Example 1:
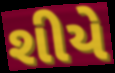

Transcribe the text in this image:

શીયે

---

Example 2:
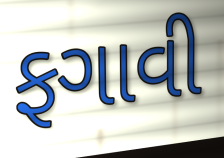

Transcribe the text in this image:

ફગાવી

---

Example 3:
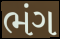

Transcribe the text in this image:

ભંગ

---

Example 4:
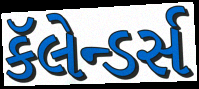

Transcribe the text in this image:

કૅલેન્ડર્સ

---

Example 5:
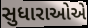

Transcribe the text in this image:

સુધારાઓએ